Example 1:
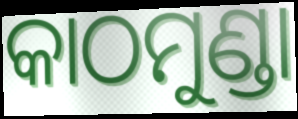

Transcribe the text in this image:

କାଠମୁଣ୍ଡା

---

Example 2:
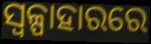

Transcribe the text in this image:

ସ୍ୱଳ୍ପାହାରରେ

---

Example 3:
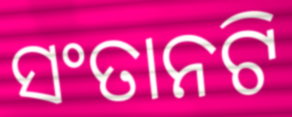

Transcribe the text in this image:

ସଂତାନଟି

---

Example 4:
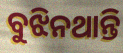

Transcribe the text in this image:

ବୁଝିନଥାନ୍ତି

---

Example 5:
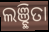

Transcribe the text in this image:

ଲଞ୍ଛିତା